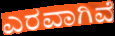
ಎರವಾಗಿವೆ